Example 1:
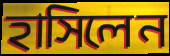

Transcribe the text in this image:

হাসিলেন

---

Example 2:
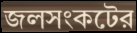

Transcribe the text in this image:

জলসংকটের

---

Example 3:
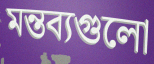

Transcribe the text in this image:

মন্তব্যগুলো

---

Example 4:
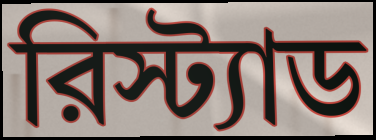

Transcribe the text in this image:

রিস্ট্যাড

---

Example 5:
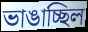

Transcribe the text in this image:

ভাঙাচ্ছিল